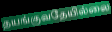
தயங்குவதேயில்லை